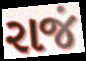
રાજં